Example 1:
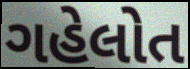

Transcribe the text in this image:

ગહેલોત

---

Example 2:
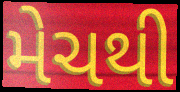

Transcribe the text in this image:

મેચથી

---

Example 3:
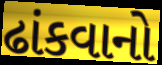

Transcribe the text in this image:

ઢાંકવાનો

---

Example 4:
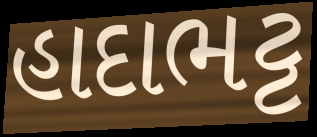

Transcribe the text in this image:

હાદાભટ્ટ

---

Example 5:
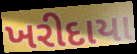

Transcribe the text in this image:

ખરીદાયા